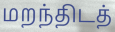
மறந்திடத்